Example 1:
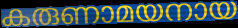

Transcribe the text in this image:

കരുണാമയനായ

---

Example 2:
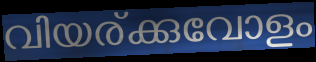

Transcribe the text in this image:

വിയര്ക്കുവോളം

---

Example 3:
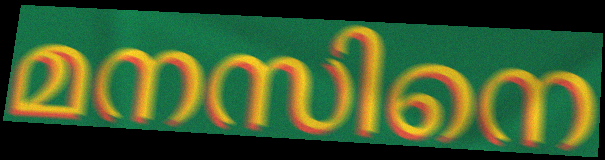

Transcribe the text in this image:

മനസിനെ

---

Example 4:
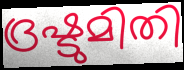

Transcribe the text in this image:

ദ്രഷ്ടുമിതി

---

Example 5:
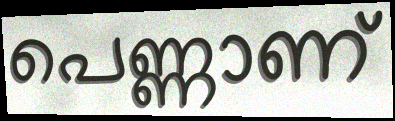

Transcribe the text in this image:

പെണ്ണാണ്